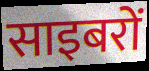
साइबरों